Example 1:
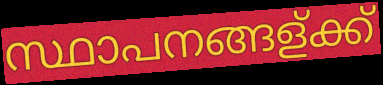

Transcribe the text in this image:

സ്ഥാപനങ്ങള്ക്ക്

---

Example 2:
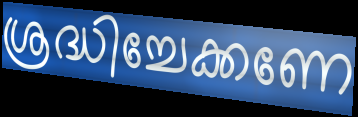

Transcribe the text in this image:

ശ്രദ്ധിച്ചേക്കണേ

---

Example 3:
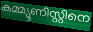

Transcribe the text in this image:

കമ്മ്യൂണിസ്റ്റിനെ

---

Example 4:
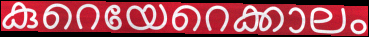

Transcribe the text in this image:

കുറെയേറെക്കാലം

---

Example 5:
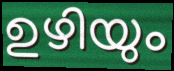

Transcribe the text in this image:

ഉഴിയും